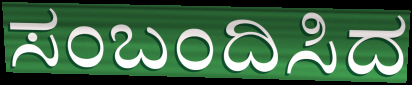
ಸಂಬಂದಿಸಿದ